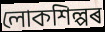
লোকশিল্পৰ